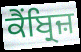
ਕੈਂਬ੍ਰਿਜ਼